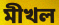
মীখল